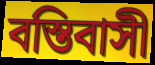
বস্তিবাসী